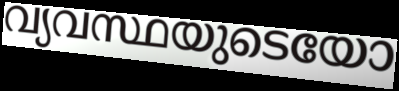
വ്യവസ്ഥയുടെയോ